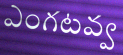
ఎంగటవ్వ